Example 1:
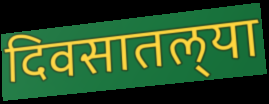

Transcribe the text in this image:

दिवसातल्या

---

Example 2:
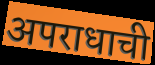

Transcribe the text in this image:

अपराधाची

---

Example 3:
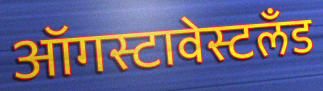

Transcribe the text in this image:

ऑगस्टावेस्टलँड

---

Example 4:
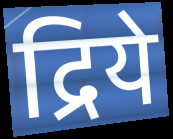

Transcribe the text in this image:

द्रिये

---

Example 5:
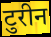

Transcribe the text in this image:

टुरीन